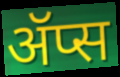
ॲप्स